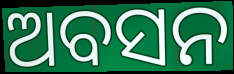
ଅବସନ